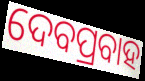
ଦେବପ୍ରବାହ